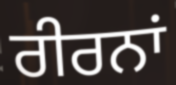
ਰੀਰਨਾਂ